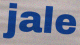
jale